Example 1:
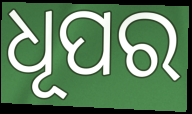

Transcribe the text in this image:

ଧୂପର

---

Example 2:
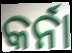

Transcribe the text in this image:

କର୍ନା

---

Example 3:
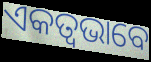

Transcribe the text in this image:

ଏକତ୍ଵଭାବେ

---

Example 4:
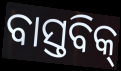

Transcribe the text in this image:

ବାସ୍ତବିକ୍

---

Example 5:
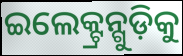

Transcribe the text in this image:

ଇଲେକ୍ଟ୍ରନ୍ଗୁଡ଼ିକୁ